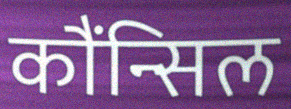
कौंन्सिल